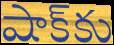
షాక్‌కు